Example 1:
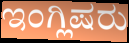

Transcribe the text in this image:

ಇಂಗ್ಲಿಷರು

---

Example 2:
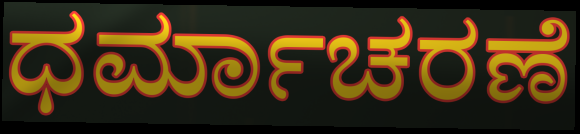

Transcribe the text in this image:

ಧರ್ಮಾಚರಣೆ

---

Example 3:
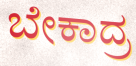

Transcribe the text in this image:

ಬೇಕಾದ್ರ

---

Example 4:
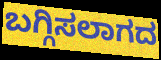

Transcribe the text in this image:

ಬಗ್ಗಿಸಲಾಗದ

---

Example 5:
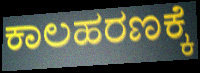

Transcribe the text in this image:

ಕಾಲಹರಣಕ್ಕೆ